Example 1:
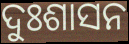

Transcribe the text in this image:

ଦୁଃଶାସନ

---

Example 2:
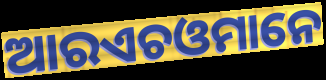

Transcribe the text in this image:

ଆରଏଚଓମାନେ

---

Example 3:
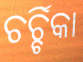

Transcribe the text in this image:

ଚର୍ଚ୍ଚିକା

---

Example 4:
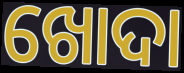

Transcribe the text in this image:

ଖୋଦା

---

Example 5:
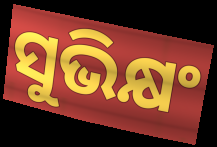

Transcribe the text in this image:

ସୁଭିକ୍ଷଂ